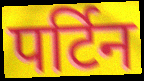
पर्टिन